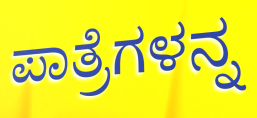
ಪಾತ್ರೆಗಳನ್ನ